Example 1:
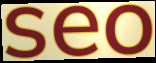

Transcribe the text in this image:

seo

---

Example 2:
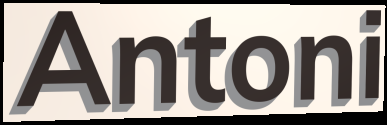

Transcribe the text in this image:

Antoni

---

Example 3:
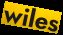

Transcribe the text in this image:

wiles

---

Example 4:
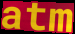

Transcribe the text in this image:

atm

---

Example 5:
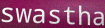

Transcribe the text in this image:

swastha